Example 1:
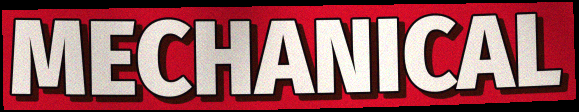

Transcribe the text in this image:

MECHANICAL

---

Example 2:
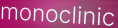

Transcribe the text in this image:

monoclinic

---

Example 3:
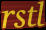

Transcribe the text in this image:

rstl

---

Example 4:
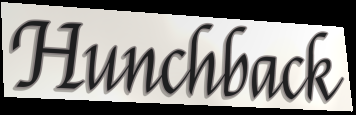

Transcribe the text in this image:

Hunchback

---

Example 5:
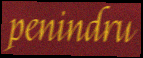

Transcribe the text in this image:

penindru